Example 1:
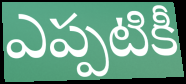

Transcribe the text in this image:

ఎప్పటికీ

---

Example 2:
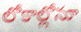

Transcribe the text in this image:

లోకాల్లోనూ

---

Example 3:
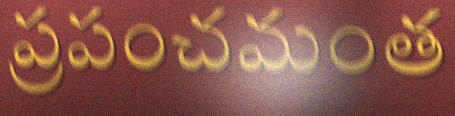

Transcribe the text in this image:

ప్రపంచమంత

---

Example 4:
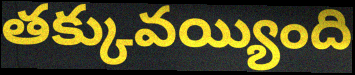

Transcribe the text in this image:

తక్కువయ్యింది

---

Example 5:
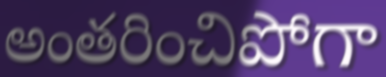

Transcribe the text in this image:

అంతరించిపోగా